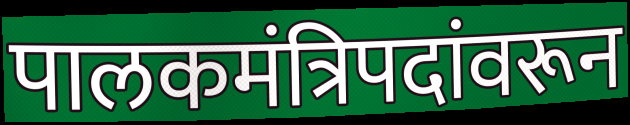
पालकमंत्रिपदांवरून